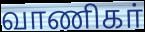
வாணிகர்